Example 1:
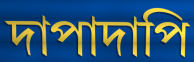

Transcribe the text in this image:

দাপাদাপি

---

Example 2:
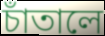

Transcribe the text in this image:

চাঁতালে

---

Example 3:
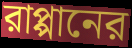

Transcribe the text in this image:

রাপ্পানের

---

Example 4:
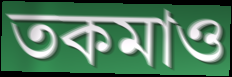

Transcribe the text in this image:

তকমাও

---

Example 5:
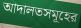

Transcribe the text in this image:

আদালতসমূহের